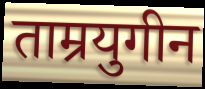
ताम्रयुगीन